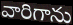
వారిగాను